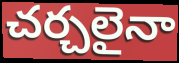
చర్చలైనా